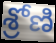
శ్రోణి